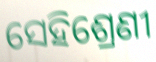
ସେହିଶ୍ରେଣୀ